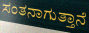
ಸಂತನಾಗುತ್ತಾನೆ